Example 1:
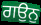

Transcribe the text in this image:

ਗਉਨੁ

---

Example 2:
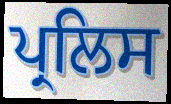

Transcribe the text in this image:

ਪ੍ਰਲਿਸ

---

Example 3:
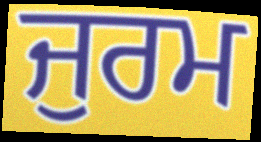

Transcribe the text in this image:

ਜੁਰਮ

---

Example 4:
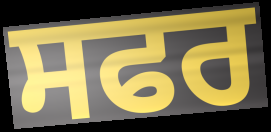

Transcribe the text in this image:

ਸਫਰ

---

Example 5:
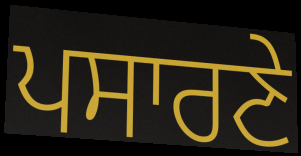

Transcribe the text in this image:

ਪਸਾਰਣੇ